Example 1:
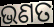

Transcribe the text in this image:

ଭଣତ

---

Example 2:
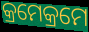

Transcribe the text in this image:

କ୍ରମେକ୍ରମେ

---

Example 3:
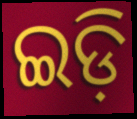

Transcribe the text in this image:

ଇଡ଼ି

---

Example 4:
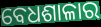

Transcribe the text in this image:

ବେଧଶାଳାର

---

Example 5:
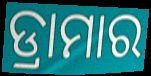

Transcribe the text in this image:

ଡ୍ରାମାର